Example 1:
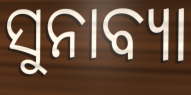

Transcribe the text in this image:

ସୁନାବ୍ୟା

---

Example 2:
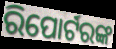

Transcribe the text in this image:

ରିପୋର୍ଟରଙ୍କ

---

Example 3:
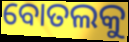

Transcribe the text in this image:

ବୋତଲକୁ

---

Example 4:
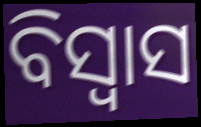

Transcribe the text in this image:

ବିସ୍ବାସ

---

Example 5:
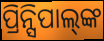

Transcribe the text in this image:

ପ୍ରିନ୍ସିପାଲ୍‍ଙ୍କ